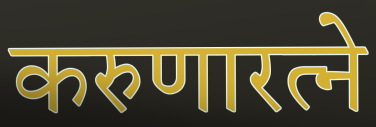
करुणारत्ने